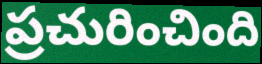
ప్రచురించింది